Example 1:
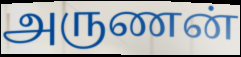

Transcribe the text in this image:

அருணன்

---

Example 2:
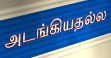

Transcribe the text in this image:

அடங்கியதல்ல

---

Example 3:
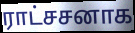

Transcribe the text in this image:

ராட்சசனாக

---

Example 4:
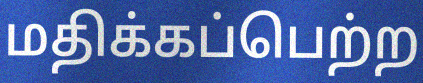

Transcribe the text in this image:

மதிக்கப்பெற்ற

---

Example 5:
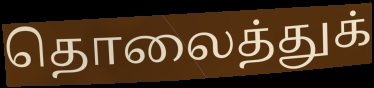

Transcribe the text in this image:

தொலைத்துக்